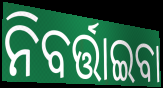
ନିବର୍ତ୍ତାଇବା